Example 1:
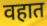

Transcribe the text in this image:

वहात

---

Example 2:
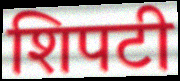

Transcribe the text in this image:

शिपटी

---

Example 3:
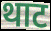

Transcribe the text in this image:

थाट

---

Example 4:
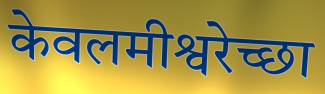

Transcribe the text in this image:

केवलमीश्वरेच्छा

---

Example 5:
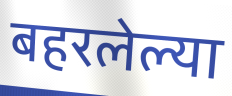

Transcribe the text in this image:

बहरलेल्या